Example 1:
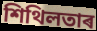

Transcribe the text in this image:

শিথিলতাৰ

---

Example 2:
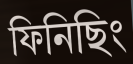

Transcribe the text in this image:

ফিনিছিং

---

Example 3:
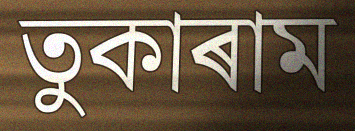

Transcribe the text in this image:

তুকাৰাম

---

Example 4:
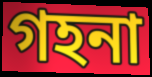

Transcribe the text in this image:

গহনা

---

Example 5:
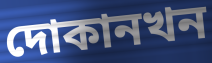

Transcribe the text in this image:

দোকানখন